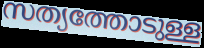
സത്യത്തോടുള്ള